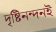
দৃষ্টিনন্দনই